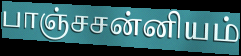
பாஞ்சசன்னியம்